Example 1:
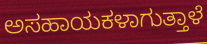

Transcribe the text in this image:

ಅಸಹಾಯಕಳಾಗುತ್ತಾಳೆ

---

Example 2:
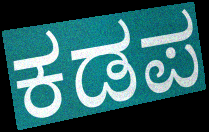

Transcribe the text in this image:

ಕಡಪ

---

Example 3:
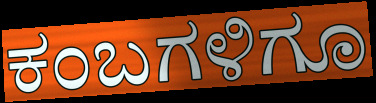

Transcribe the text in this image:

ಕಂಬಗಳಿಗೂ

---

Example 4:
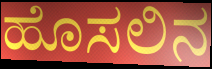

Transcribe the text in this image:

ಹೊಸಲಿನ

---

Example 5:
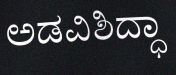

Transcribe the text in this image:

ಅಡವಿಶಿದ್ಧಾ